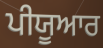
ਪੀਯੂਆਰ